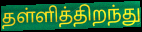
தள்ளித்திறந்து